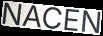
NACEN